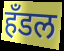
हॅंडल